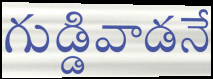
గుడ్డివాడనే